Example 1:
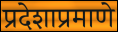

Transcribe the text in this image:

प्रदेशाप्रमाणे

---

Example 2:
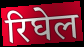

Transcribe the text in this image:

रिघेल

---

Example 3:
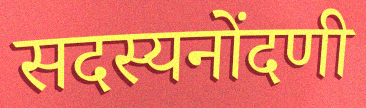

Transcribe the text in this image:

सदस्यनोंदणी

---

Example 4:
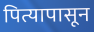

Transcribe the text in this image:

पित्यापासून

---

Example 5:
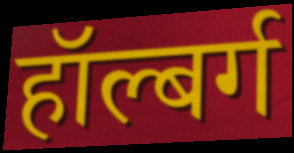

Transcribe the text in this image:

हॉल्बर्ग